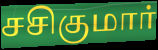
சசிகுமார்